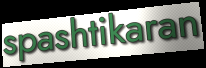
spashtikaran